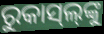
ରୁକାସ୍‍ଲ୍‌ଙ୍କୁ